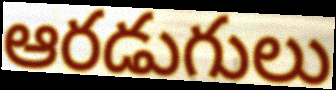
ఆరడుగులు